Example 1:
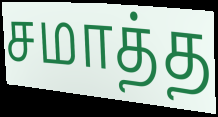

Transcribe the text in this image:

சமாத்த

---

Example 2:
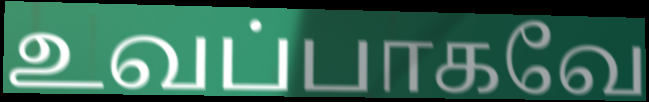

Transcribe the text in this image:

உவப்பாகவே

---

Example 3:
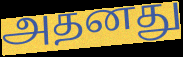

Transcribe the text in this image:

அதனது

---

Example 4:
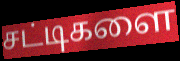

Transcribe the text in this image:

சட்டிகளை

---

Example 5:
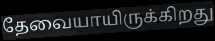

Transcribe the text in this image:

தேவையாயிருக்கிறது